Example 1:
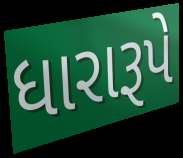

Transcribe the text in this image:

ધારારૂપે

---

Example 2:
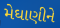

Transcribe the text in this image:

મેઘાણીને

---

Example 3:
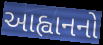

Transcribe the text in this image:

આહ્વાનનો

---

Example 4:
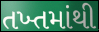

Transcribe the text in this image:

તખ્તમાંથી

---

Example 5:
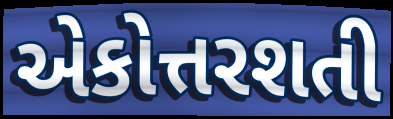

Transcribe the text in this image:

એકોત્તરશતી